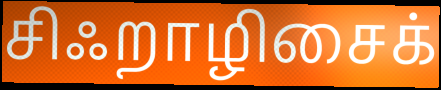
சிஃறாழிசைக்